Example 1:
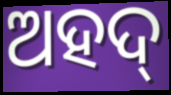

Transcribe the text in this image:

ଅହଦ୍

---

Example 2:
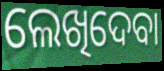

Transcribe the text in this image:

ଲେଖିଦେବା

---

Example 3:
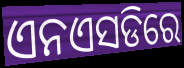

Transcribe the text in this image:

ଏନଏସଡିରେ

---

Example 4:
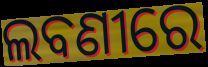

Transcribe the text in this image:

ଲବଣୀରେ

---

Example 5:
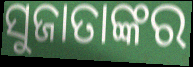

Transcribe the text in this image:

ସୁଜାତାଙ୍କର